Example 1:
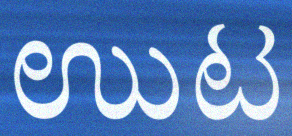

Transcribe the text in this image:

ಉುಟ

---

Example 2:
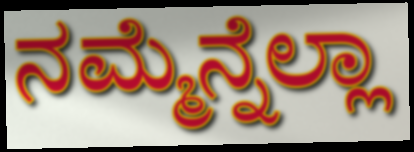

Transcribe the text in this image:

ನಮ್ಮೆನ್ನೆಲ್ಲಾ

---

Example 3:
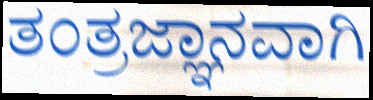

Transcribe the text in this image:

ತಂತ್ರಜ್ಞಾನವಾಗಿ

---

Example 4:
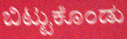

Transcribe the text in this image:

ಬಿಟ್ಟುಕೊಂಡು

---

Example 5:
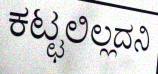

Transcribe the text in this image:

ಕಟ್ಟಲಿಲ್ಲದನಿ